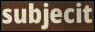
subjecit